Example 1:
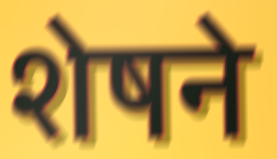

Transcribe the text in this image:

शेषने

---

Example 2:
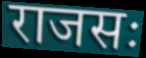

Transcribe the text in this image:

राजसः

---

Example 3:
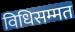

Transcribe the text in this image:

विधिसम्मत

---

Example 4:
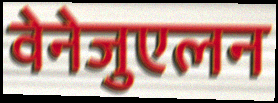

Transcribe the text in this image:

वेनेजुएलन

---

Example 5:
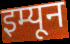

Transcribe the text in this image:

इम्‍यून